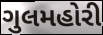
ગુલમહોરી